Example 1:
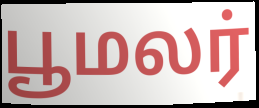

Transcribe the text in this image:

பூமலர்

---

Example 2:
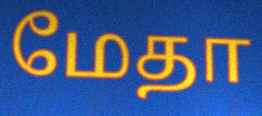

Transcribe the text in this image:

மேதா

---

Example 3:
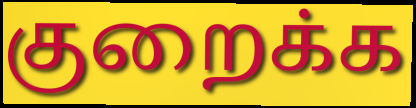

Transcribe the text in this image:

குறைக்க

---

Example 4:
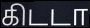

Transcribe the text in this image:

கிடடா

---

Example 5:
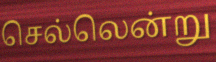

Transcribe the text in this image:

செல்லென்று